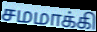
சமமாக்கி